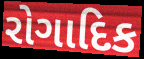
રોગાદિક